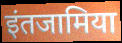
इंतजामिया